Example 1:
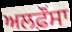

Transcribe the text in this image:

ਅਲਫ਼ੌਂਸਾ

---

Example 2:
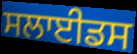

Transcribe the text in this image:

ਸਲਾਈਡਸ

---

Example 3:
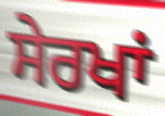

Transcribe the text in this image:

ਸੇਰਖਾਂ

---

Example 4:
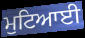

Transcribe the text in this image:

ਮੁਟਿਆਈ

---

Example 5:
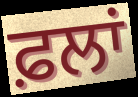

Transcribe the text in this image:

ਫ਼ਲਾਂ